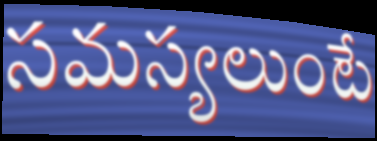
సమస్యలుంటే